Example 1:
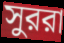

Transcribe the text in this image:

সুররা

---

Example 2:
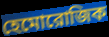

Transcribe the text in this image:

হেমোরোজিক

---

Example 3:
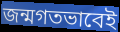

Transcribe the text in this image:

জন্মগতভাবেই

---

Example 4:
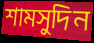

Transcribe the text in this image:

শামসুদিন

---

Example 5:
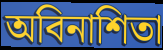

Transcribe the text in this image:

অবিনাশিতা